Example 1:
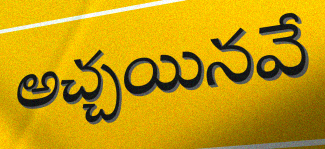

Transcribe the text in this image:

అచ్చయినవే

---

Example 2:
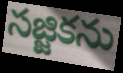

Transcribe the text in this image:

సజ్జికను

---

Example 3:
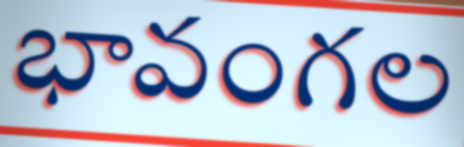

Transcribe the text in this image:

భావంగల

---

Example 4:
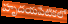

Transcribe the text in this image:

హృదయపేటికలో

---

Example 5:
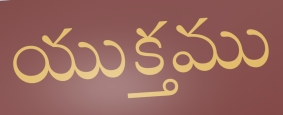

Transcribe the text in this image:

యుక్తము